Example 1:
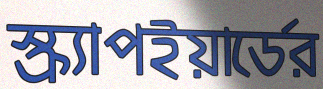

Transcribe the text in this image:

স্ক্র্যাপইয়ার্ডের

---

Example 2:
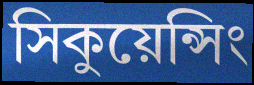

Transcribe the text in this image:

সিকুয়েন্সিং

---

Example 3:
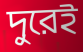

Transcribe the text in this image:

দুরেই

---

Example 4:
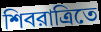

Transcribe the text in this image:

শিবরাত্রিতে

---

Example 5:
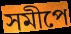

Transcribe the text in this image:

সমীপে